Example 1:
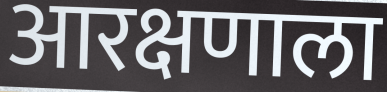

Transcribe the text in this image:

आरक्षणाला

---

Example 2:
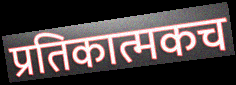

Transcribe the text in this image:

प्रतिकात्मकच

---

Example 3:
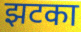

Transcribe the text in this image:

झटका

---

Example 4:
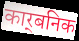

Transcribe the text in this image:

कार्बनिक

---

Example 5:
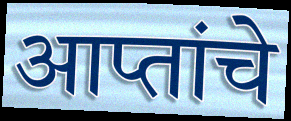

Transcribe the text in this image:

आप्तांचे